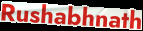
Rushabhnath